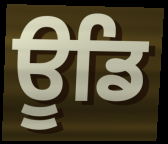
ਊਡਿ